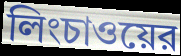
লিংচাওয়ের